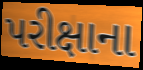
પરીક્ષાના